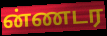
ன்ணடர